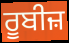
ਰੂਬੀਜ਼